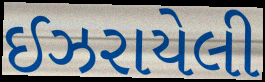
ઈઝરાયેલી